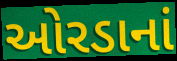
ઓરડાનાં